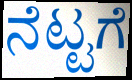
ನೆಟ್ಟಗೆ